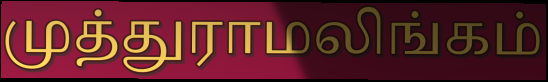
முத்துராமலிங்கம்